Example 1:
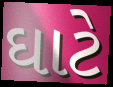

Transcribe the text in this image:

ઘાટે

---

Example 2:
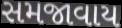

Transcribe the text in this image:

સમજાવાય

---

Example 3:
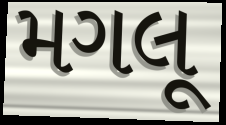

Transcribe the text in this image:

મગલૂ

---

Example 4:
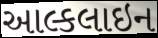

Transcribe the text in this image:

આલ્કલાઇન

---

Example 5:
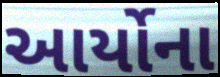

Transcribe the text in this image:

આર્યોના